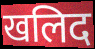
खलिद